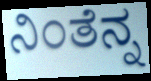
ನಿಂತೆನ್ನ